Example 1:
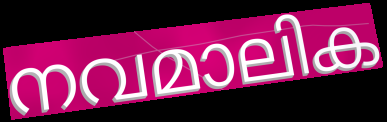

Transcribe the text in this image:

നവമാലിക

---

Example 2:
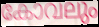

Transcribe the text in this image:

കോവലും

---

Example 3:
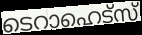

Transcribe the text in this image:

ടെറാഹെട്സ്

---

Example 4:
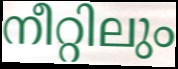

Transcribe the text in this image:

നീറ്റിലും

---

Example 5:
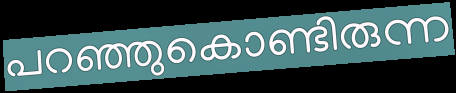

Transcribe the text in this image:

പറഞ്ഞുകൊണ്ടിരുന്ന